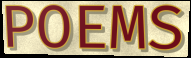
POEMS